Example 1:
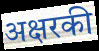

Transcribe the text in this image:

अक्षरकी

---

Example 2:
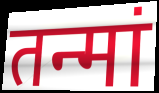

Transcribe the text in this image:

तन्मां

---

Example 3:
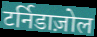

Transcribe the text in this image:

टर्निडाज़ोल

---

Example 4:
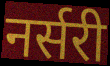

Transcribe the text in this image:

नर्सरी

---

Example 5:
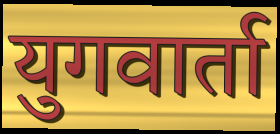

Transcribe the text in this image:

युगवार्ता